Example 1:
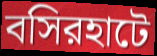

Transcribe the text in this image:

বসিরহাটে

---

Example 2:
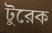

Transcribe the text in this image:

টুরেক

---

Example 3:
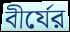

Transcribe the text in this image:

বীর্যের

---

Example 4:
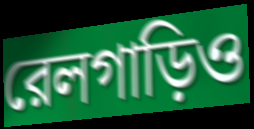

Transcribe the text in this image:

রেলগাড়িও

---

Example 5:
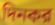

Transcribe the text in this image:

দিনকর